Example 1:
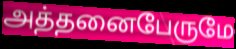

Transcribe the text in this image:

அத்தனைபேருமே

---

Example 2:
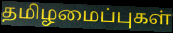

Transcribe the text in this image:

தமிழமைப்புகள்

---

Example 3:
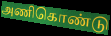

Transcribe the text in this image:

அணிகொண்டு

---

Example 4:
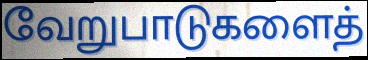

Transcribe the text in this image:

வேறுபாடுகளைத்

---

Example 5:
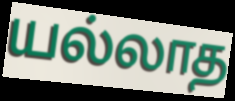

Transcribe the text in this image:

யல்லாத